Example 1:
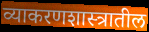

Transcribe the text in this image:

व्याकरणशास्त्रातील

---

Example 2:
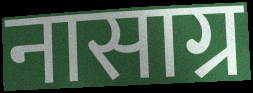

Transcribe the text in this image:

नासाग्र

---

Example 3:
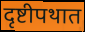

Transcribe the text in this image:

दृष्टीपथात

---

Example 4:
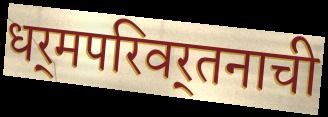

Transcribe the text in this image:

धर्मपरिवर्तनाची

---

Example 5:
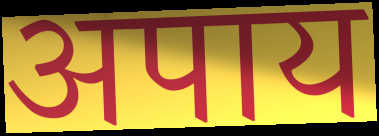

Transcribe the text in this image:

अपाय